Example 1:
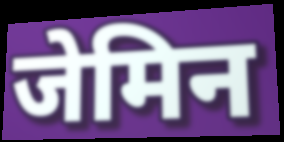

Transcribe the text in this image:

जेमिन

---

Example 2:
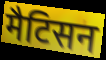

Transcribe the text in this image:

मैटिसन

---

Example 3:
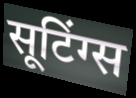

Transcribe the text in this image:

सूटिंग्स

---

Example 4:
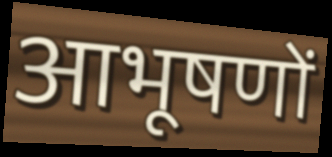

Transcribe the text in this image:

आभूषणों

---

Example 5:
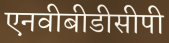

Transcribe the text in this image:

एनवीबीडीसीपी